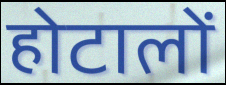
होटालों